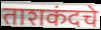
ताशकंदचे